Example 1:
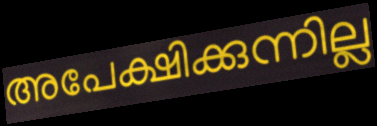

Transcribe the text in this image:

അപേക്ഷിക്കുന്നില്ല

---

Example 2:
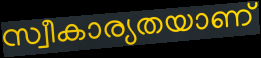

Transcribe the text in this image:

സ്വീകാര്യതയാണ്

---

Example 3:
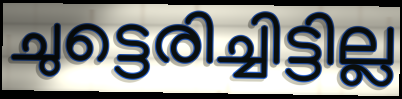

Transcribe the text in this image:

ചുട്ടെരിച്ചിട്ടില്ല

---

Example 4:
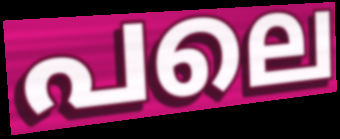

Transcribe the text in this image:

പലെ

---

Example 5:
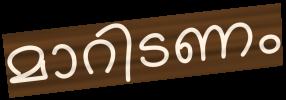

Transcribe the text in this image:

മാറിടണം